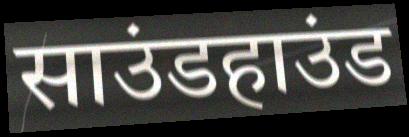
साउंडहाउंड